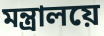
মন্ত্ৰালয়ে